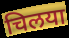
चिलया